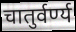
चातुर्वर्ण्य